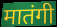
मातंगी